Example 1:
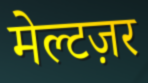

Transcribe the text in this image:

मेल्टज़र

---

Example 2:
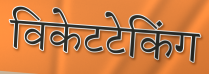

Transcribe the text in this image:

विकेटटेकिंग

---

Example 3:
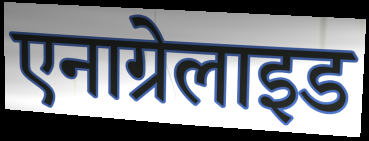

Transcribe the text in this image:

एनाग्रेलाइड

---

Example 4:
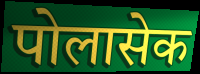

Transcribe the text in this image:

पोलासेक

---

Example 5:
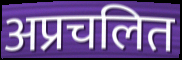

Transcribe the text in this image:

अप्रचलित